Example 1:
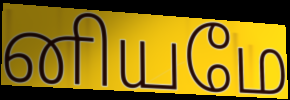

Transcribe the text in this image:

னியமே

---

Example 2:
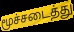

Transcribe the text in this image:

மூச்சடைத்து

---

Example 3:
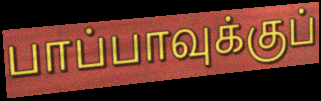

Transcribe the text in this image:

பாப்பாவுக்குப்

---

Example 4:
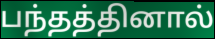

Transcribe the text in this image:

பந்தத்தினால்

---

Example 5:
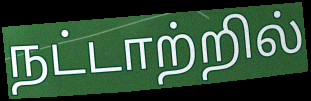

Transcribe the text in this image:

நட்டாற்றில்